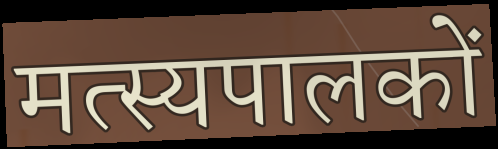
मत्स्यपालकों